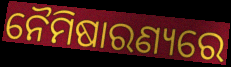
ନୈମିଷାରଣ୍ୟରେ